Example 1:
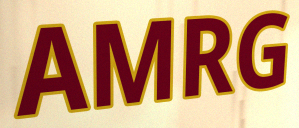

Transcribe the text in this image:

AMRG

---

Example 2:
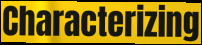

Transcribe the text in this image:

Characterizing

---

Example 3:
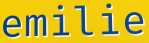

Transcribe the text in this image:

emilie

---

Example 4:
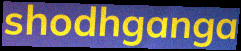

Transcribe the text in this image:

shodhganga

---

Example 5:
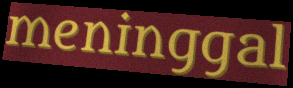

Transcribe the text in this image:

meninggal